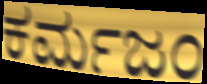
ಕರ್ಮಜಂ